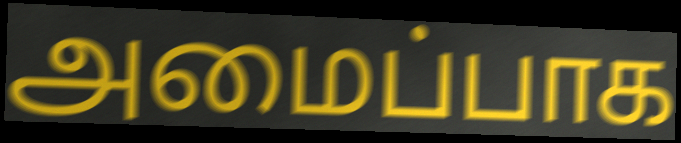
அமைப்பாக